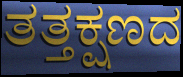
ತತ್ತಕ್ಷಣದ